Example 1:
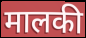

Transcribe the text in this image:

मालकी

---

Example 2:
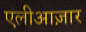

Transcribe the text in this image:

एलीआज़ार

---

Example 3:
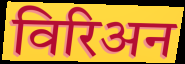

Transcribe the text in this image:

विरिअन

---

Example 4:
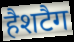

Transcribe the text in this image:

हैशटैग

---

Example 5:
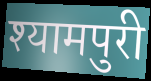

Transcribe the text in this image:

श्यामपुरी